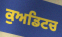
ਕੁਅਡਿਟਚ